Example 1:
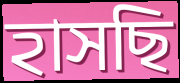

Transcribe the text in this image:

হাসছি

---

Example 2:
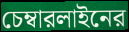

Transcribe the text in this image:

চেম্বারলাইনের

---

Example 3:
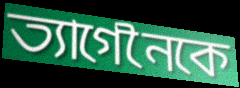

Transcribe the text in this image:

ত্যাগেনৈকে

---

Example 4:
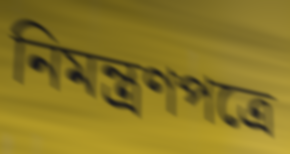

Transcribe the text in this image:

নিমন্ত্রণপত্রে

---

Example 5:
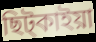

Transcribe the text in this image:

ছিট্কাইয়া